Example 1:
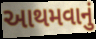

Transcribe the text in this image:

આથમવાનું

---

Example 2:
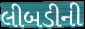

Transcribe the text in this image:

લીબડીની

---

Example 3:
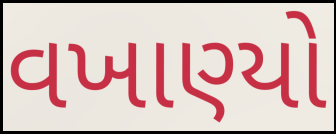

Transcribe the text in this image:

વખાણ્યો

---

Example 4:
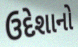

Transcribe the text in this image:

ઉદેશાનો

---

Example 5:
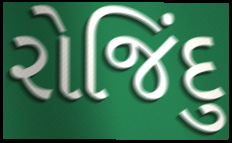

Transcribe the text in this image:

રોજિંદુ